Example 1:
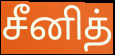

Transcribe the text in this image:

சீனித்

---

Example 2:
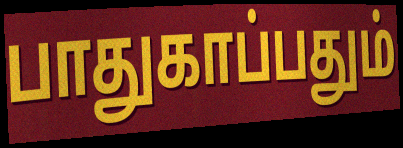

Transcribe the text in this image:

பாதுகாப்பதும்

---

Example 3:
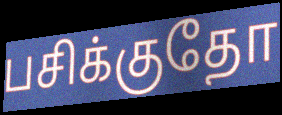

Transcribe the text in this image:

பசிக்குதோ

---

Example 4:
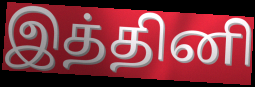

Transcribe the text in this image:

இத்தினி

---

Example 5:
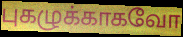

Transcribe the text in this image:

புகழுக்காகவோ